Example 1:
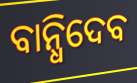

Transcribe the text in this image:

ବାନ୍ଧିଦେବ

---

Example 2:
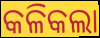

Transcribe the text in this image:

କଳିକଲା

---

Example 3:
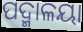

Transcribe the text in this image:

ପଦ୍ମାଳୟା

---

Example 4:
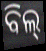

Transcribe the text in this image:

ବିଲ୍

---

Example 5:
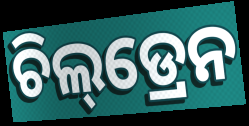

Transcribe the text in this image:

ଚିଲ୍‌ଡ୍ରେନ